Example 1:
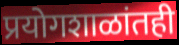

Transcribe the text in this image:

प्रयोगशाळांतही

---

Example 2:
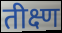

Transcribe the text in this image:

तीक्ष्ण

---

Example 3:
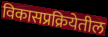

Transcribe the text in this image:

विकासप्रक्रियेतील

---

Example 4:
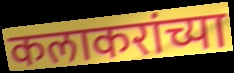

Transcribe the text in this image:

कलाकरांच्या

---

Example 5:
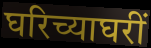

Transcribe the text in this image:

घरिच्याघरीं